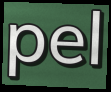
pel